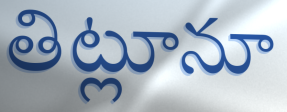
తిట్లూనూ